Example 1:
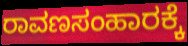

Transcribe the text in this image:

ರಾವಣಸಂಹಾರಕ್ಕೆ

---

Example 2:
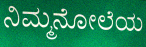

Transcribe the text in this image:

ನಿಮ್ಮನೋಲೆಯ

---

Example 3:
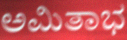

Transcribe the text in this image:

ಅಮಿತಾಭ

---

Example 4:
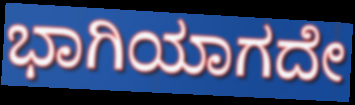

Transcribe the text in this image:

ಭಾಗಿಯಾಗದೇ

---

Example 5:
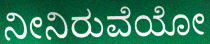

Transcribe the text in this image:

ನೀನಿರುವೆಯೋ